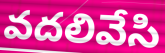
వదలివేసి